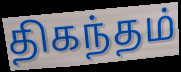
திகந்தம்